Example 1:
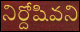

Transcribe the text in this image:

నిర్దోషివని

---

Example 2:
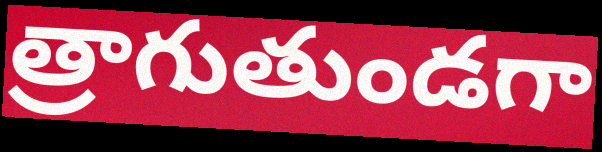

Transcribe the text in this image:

త్రాగుతుండగా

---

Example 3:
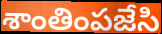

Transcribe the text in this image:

శాంతింపజేసి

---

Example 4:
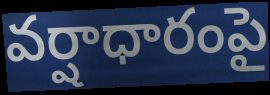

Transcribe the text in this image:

వర్షాధారంపై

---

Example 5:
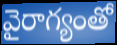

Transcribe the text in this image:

వైరాగ్యంతో